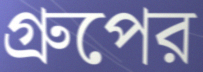
গ্রুপের